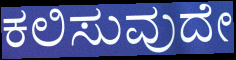
ಕಲಿಸುವುದೇ